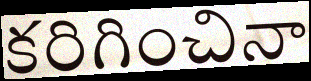
కరిగించినా